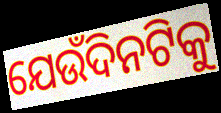
ଯେଉଁଦିନଟିକୁ